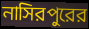
নাসিরপুরের